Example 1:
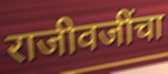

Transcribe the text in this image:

राजीवजींचा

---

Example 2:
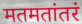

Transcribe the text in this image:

मतमतांतरं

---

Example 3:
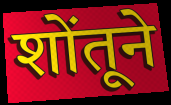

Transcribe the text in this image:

शोंतूने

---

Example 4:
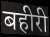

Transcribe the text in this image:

बहीरी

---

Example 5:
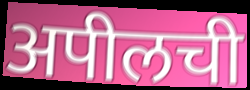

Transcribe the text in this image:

अपीलची